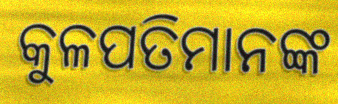
କୁଳପତିମାନଙ୍କ